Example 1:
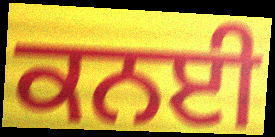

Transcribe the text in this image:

ਕਨਈ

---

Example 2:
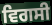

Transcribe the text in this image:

ਵਿਗਸੀ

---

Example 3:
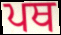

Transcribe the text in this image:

ਪਥ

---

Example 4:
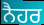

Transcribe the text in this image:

ਨੈਹਰ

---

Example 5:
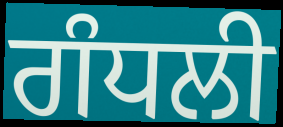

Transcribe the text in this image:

ਗੰਧਲੀ